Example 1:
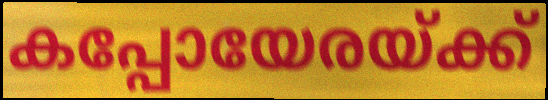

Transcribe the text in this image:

കപ്പോയേരയ്ക്ക്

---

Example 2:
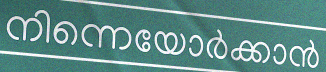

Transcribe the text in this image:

നിന്നെയോർക്കാൻ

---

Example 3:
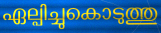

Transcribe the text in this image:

ഏല്പിച്ചുകൊടുത്തു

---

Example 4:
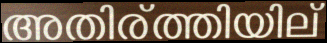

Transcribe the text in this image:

അതിര്ത്തിയില്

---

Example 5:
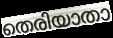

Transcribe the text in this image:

തെരിയാതാ